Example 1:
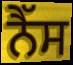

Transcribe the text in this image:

ਨੈੱਸ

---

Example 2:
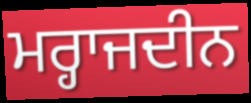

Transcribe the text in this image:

ਮਰ੍ਹਾਜਦੀਨ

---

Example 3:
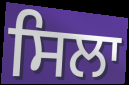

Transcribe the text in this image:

ਸਿਲਾ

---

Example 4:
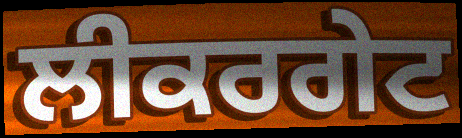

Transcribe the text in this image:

ਲੀਕਰਗੇਟ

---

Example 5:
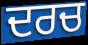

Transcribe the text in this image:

ਦਰਚ